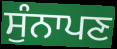
ਸੁੰਨਾਪਣ